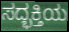
ಸದ್ಭಕ್ತಿಯ